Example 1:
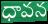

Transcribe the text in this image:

ధావన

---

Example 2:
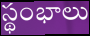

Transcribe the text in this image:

స్థంభాలు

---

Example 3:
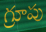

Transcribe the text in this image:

గ్రూపు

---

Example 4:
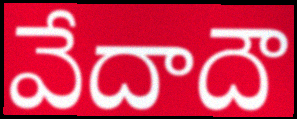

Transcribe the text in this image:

వేదాదౌ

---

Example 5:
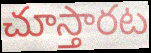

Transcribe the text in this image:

చూస్తారట